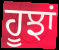
ਹੂਝਾਂ